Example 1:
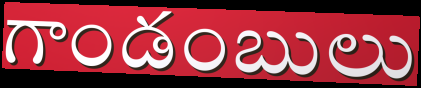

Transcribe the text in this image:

గాండంబులు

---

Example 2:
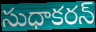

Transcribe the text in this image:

సుధాకరన్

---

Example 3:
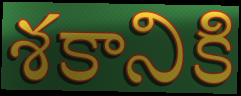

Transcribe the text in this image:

శకానికి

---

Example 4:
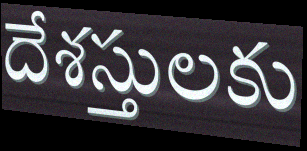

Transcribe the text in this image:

దేశస్తులకు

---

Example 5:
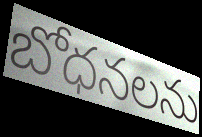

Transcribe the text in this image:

బోధనలను